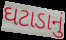
ઘટાડાનું